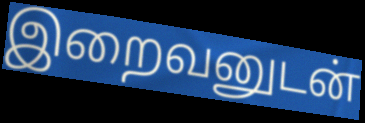
இறைவனுடன்